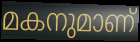
മകനുമാണ്